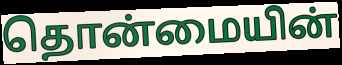
தொன்மையின்